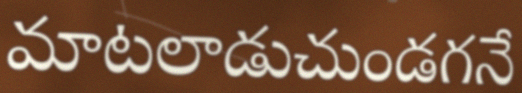
మాటలాడుచుండగనే